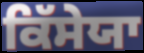
ਕਿੱਸੇਯਾ